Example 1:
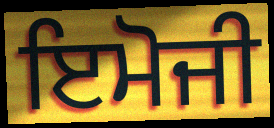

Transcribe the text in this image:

ਇਮੋਜੀ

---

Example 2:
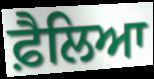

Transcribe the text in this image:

ਫ਼ੈਲਿਆ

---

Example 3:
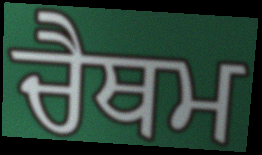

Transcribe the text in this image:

ਚੈਥਮ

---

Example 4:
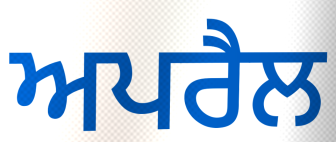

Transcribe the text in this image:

ਅਪਰੈਲ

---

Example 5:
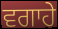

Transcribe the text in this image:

ਵਗਾਹੇ